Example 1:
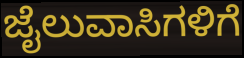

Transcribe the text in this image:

ಜೈಲುವಾಸಿಗಳಿಗೆ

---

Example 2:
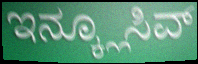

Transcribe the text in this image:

ಇನ್ಕ್ಲೂಸಿವ್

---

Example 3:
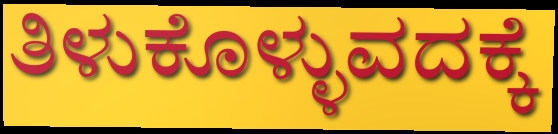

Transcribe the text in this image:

ತಿಳುಕೊಳ್ಳುವದಕ್ಕೆ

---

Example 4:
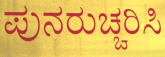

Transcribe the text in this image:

ಪುನರುಚ್ಚರಿಸಿ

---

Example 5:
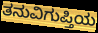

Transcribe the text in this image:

ತನುವಿಗುಪ್ತಿಯ